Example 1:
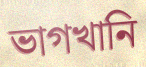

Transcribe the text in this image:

ভাগখানি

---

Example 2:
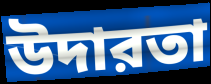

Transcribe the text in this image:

উদারতা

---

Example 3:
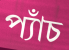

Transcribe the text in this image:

প্যাঁচ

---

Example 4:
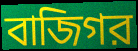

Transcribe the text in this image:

বাজিগর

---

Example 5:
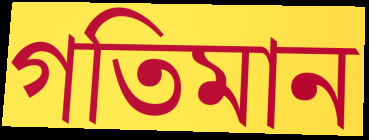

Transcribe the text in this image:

গতিমান